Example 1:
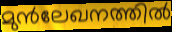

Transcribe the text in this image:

മുൻലേഖനത്തിൽ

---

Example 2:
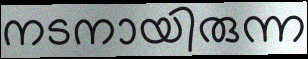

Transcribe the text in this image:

നടനായിരുന്ന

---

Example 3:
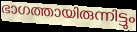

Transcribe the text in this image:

ഭാഗത്തായിരുന്നിട്ടും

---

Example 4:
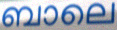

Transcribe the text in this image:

ബാലെ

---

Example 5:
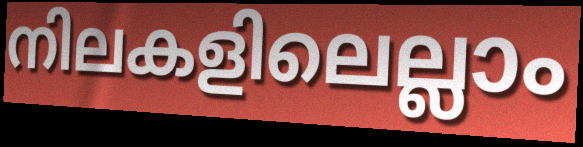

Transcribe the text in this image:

നിലകളിലെല്ലാം